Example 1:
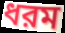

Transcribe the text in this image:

ধরম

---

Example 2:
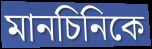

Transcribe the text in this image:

মানচিনিকে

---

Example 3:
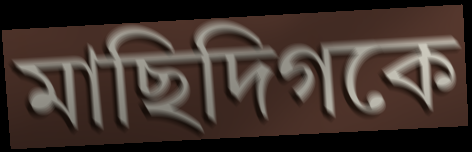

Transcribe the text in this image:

মাছিদিগকে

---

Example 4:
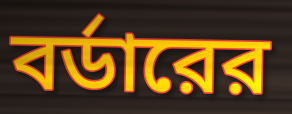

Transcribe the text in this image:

বর্ডারের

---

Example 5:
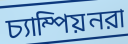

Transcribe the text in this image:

চ্যাম্পিয়নরা